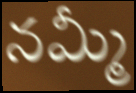
నమ్మీ